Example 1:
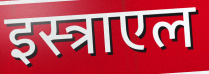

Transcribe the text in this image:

इस्त्राएल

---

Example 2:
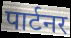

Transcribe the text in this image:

पार्टनर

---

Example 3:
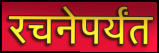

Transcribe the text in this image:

रचनेपर्यंत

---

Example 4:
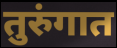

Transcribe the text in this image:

तुरुंगात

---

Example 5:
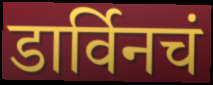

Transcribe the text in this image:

डार्विनचं